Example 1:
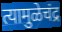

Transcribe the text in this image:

त्यामुळेचंद्र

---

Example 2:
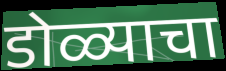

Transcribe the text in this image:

डोळ्याचा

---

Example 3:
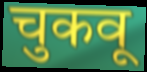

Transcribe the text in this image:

चुकवू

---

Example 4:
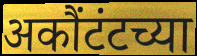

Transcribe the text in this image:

अकौंटंटच्या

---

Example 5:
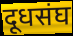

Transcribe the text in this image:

दूधसंघ